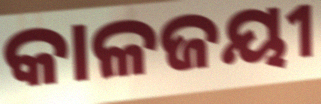
କାଳଜୟୀ